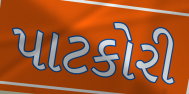
પાટકોરી